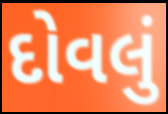
દોવલું